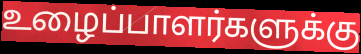
உழைப்பாளர்களுக்கு